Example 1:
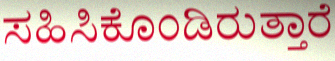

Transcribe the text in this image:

ಸಹಿಸಿಕೊಂಡಿರುತ್ತಾರೆ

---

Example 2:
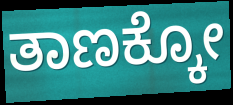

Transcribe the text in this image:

ತಾಣಕ್ಕೋ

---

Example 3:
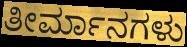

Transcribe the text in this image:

ತೀರ್ಮಾನಗಳು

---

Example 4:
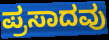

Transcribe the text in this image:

ಪ್ರಸಾದವು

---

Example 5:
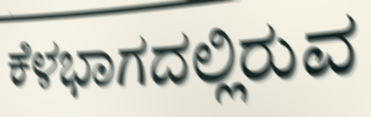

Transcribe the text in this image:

ಕೆಳಭಾಗದಲ್ಲಿರುವ